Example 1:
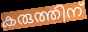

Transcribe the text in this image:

കരുത്തിന്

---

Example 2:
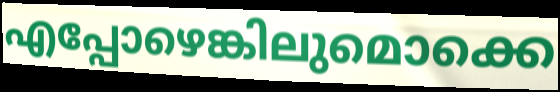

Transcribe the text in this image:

എപ്പോഴെങ്കിലുമൊക്കെ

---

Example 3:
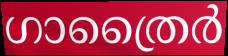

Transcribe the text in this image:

ഗാത്രൈർ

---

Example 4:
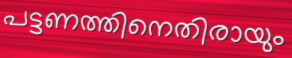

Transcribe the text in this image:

പട്ടണത്തിനെതിരായും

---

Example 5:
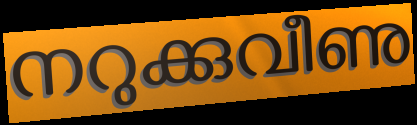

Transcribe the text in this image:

നറുക്കുവീണു